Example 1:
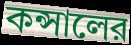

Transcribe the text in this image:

কন্সালের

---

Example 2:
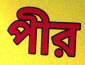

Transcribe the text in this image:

পীর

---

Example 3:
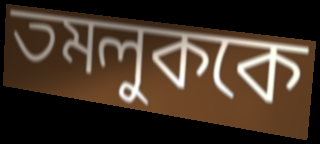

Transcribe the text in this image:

তমলুককে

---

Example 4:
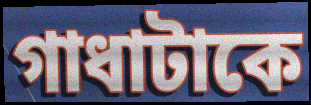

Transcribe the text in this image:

গাধাটাকে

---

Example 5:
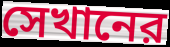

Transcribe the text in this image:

সেখানের